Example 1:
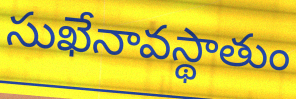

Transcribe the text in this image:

సుఖేనావస్థాతుం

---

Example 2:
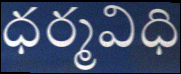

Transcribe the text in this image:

ధర్మవిధి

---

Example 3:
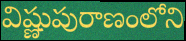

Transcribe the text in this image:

విష్ణుపురాణంలోని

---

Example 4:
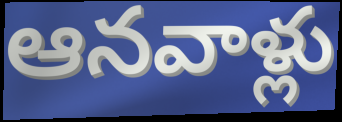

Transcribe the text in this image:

ఆనవాళ్లు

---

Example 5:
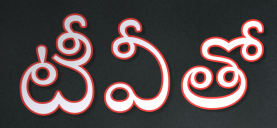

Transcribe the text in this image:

టీవీతో